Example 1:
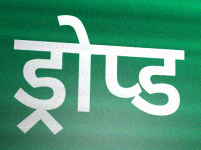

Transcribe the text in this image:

ड्रोप्ड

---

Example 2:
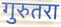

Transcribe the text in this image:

गुरुतरा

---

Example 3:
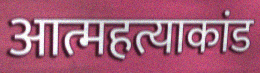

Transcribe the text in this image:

आत्महत्याकांड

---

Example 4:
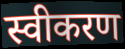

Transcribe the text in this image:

स्वीकरण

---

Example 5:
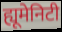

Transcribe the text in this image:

ह्यूमेनिटी